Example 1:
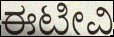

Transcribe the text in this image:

ಈಟೀವಿ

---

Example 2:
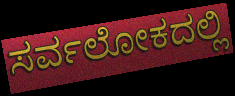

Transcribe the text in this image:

ಸರ್ವಲೋಕದಲ್ಲಿ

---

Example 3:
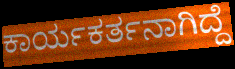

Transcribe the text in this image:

ಕಾರ್ಯಕರ್ತನಾಗಿದ್ದೆ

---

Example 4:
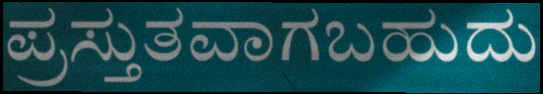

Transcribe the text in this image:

ಪ್ರಸ್ತುತವಾಗಬಹುದು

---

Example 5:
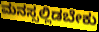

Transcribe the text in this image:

ಮನಸ್ಸಲ್ಲಿಡಬೇಕು